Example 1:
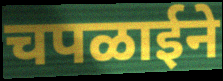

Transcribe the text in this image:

चपळाईने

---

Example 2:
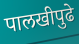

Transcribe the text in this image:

पालखीपुढे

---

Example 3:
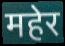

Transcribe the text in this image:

महेर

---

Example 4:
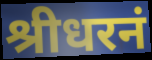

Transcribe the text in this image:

श्रीधरनं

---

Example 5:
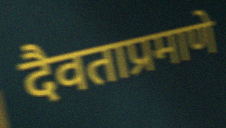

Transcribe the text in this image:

दैवताप्रमाणे